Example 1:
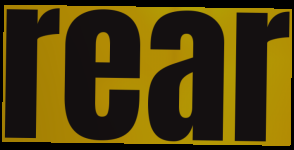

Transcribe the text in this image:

rear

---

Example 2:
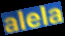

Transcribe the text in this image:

alela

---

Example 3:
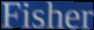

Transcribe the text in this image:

Fisher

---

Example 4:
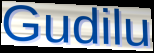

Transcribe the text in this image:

Gudilu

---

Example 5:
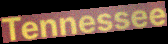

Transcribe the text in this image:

Tennessee